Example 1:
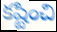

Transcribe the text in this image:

కష్టించి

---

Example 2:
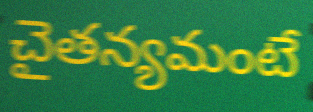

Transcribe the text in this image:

చైతన్యమంటే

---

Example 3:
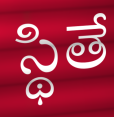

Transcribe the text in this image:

స్థితే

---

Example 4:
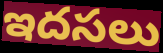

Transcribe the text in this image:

ఇదసలు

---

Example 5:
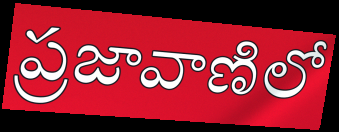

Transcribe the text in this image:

ప్రజావాణిలో